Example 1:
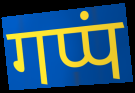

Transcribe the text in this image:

गप्पं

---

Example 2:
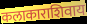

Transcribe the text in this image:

कलाकाराशिवाय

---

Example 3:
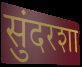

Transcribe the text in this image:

सुंदरशा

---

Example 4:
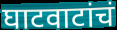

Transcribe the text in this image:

घाटवाटांचं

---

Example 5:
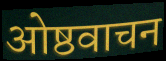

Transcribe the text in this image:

ओष्ठवाचन